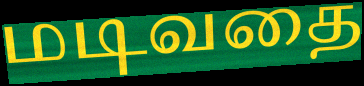
மடிவதை